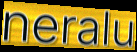
neralu